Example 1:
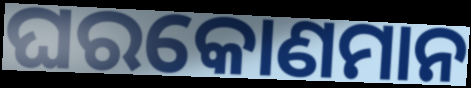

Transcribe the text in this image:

ଘରକୋଣମାନ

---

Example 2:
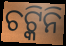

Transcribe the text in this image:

ଚଟ୍କିନି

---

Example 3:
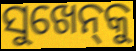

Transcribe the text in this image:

ସୁଖେନ୍‌କୁ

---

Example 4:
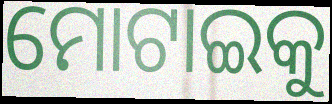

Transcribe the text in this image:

ମୋଟାଇକୁ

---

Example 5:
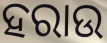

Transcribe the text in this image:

ହରାଉ